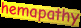
hemapathy